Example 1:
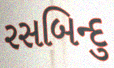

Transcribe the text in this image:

રસબિન્દુ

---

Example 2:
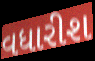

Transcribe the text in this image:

વધારીશ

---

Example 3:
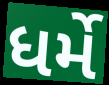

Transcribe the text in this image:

ધર્મે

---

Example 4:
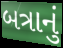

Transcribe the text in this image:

બત્રાનું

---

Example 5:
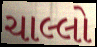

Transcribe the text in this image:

ચાલ્લો